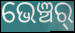
ଭେଞ୍ଚର୍